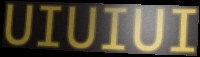
UIUIUI